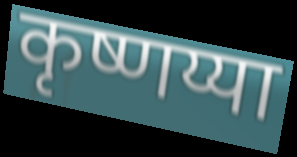
कृष्णय्या